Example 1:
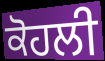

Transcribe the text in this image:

ਕੋਹਲੀ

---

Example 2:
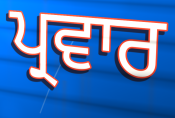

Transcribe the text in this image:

ਪ੍ਰਵਾਰ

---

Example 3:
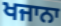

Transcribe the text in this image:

ਖਜਾਨਾ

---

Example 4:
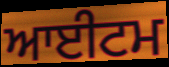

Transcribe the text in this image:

ਆਈਟਮ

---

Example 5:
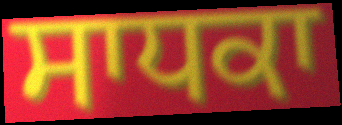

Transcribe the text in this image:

ਸਾਧਕਾ